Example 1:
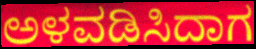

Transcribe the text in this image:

ಅಳವಡಿಸಿದಾಗ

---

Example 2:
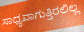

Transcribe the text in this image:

ಸಾಧ್ಯವಾಗುತ್ತಿರಲಿಲ್ಲ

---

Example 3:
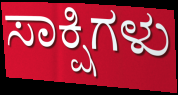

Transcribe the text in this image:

ಸಾಕ್ಷಿಗಳು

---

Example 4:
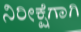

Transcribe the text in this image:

ನಿರೀಕ್ಷೆಗಾಗಿ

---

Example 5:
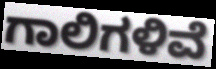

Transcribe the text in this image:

ಗಾಲಿಗಳಿವೆ